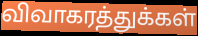
விவாகரத்துக்கள்